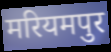
मरियमपुर